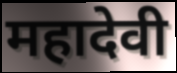
महादेवी